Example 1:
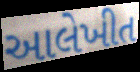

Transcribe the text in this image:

આલેખીત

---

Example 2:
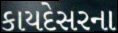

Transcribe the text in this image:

કાયદેસરના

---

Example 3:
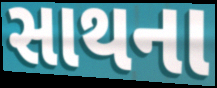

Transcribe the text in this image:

સાથના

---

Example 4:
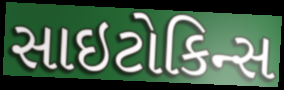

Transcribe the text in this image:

સાઇટોકિન્સ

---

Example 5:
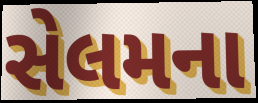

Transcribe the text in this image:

સેલમના